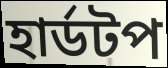
হার্ডটপ